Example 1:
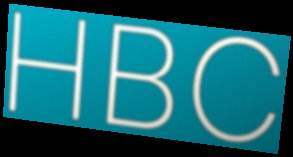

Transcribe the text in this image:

HBC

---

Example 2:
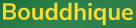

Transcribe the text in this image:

Bouddhique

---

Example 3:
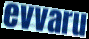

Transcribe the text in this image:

evvaru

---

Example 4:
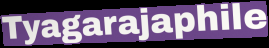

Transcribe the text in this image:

Tyagarajaphile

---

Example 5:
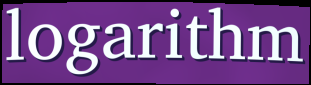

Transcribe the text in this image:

logarithm